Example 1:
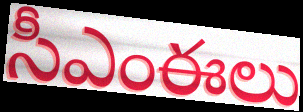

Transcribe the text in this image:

సీఎంఈలు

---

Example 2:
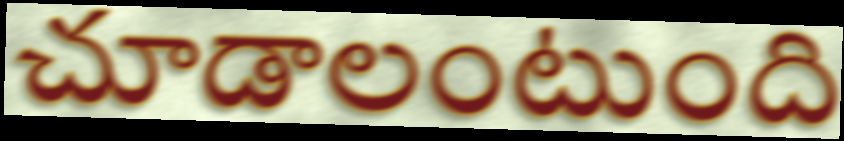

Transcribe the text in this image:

చూడాలంటుంది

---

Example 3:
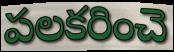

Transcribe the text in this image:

పలకరించె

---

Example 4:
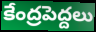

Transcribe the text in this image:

కేంద్రపెద్దలు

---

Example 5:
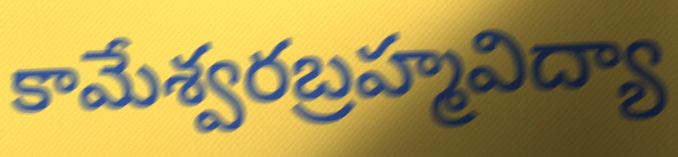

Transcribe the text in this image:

కామేశ్వరబ్రహ్మవిద్యా